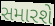
સમારશે